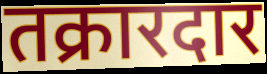
तक्रारदार